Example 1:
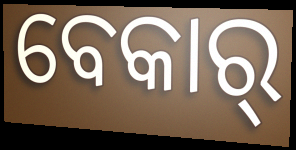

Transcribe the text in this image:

ବେକାର୍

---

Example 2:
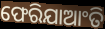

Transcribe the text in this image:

ଫେରିଯାଆଂତି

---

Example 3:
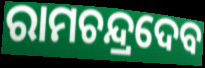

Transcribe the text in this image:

ରାମଚନ୍ଦ୍ରଦେବ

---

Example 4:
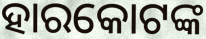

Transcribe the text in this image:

ହାରକୋଟଙ୍କ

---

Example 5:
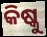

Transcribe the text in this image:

କିଷ୍କୁ